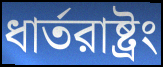
ধার্তরাষ্ট্রং